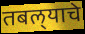
तबल्याचे